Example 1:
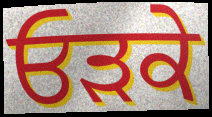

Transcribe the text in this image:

ਓੜਕੇ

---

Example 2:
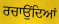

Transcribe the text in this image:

ਰਚਾਉਂਦਿਆਂ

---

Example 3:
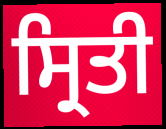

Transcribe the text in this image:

ਸ੍ਰਿਤੀ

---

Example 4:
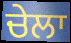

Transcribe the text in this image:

ਚੇਲਾ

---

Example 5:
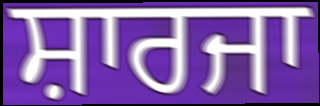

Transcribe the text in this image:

ਸ਼ਾਰਜਾ